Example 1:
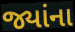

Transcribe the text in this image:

જ્યાંના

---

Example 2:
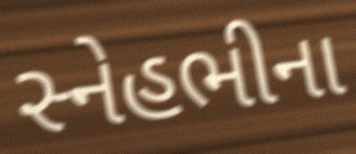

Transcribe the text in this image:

સ્નેહભીના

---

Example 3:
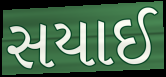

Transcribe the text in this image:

સયાઈ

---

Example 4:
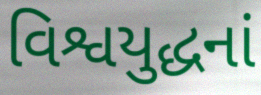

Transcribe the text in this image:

વિશ્વયુદ્ધનાં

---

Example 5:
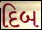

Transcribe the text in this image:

દિબ